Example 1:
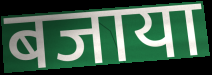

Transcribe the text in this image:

बजाया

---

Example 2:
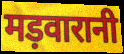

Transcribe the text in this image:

मड़वारानी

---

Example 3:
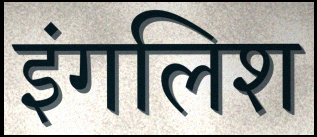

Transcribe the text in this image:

इंगलिश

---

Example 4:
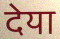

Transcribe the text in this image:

देया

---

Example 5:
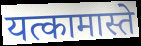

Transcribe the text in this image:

यत्कामास्ते